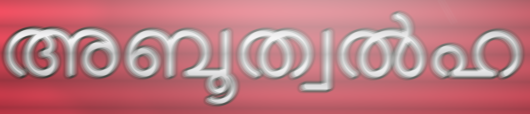
അബൂത്വൽഹ